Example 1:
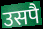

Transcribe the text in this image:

उसपै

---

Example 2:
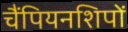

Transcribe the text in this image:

चैंपियनशिपों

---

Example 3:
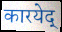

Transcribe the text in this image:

कारयेद्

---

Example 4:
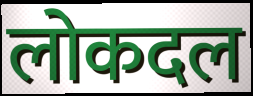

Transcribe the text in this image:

लोकदल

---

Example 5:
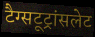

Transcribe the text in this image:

टैग्सटूट्रांसलेट